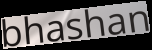
bhashan